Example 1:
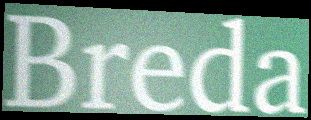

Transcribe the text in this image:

Breda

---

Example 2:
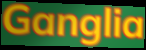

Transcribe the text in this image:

Ganglia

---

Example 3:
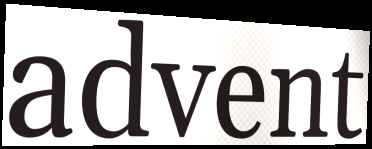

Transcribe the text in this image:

advent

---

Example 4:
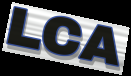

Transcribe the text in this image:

LCA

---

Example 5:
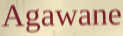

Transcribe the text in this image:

Agawane